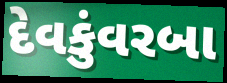
દેવકુંવરબા